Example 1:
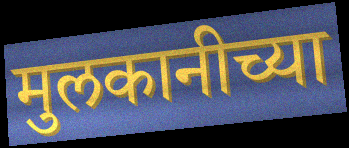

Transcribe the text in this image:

मुलकानीच्या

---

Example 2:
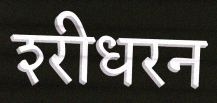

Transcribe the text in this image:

श्रीधरन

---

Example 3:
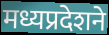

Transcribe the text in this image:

मध्यप्रदेशने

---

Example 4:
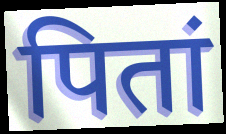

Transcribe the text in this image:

पितां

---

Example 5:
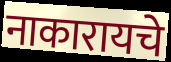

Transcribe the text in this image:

नाकारायचे